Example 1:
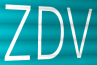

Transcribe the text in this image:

ZDV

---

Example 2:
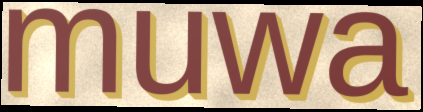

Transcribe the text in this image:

muwa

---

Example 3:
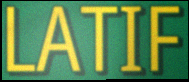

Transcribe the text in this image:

LATIF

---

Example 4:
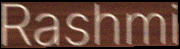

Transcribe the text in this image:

Rashmi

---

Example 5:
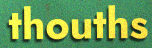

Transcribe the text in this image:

thouths